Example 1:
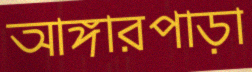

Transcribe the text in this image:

আঙ্গারপাড়া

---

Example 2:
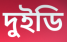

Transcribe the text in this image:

দুইডি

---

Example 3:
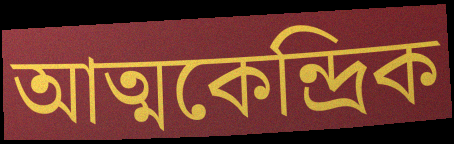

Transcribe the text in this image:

আত্মকেন্দ্রিক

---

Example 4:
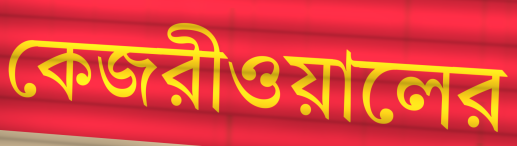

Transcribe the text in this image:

কেজরীওয়ালের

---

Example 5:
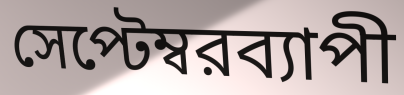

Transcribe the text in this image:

সেপ্টেম্বরব্যাপী